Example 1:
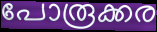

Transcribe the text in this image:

പോരൂക്കര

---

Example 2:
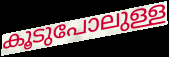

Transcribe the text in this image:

കൂടുപോലുള്ള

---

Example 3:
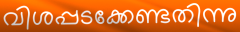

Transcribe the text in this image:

വിശപ്പടക്കേണ്ടതിന്നു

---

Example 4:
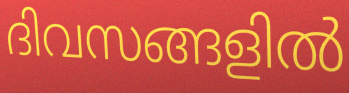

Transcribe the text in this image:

ദിവസങ്ങളിൽ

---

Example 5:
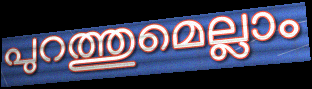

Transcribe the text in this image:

പുറത്തുമെല്ലാം